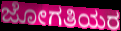
ಜೋಗತಿಯರ